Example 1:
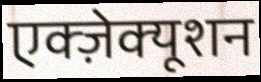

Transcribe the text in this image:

एक्ज़ेक्यूशन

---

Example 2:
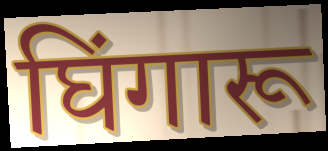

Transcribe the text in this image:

घिंगारू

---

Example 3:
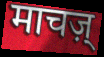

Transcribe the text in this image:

माचज़्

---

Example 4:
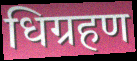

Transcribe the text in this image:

धिग्रहण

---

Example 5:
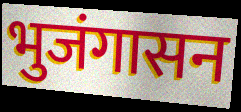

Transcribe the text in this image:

भुजंगासन